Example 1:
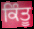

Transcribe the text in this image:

ਕਿੰਤੂ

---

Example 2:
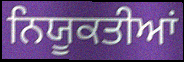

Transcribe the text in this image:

ਨਿਯੂਕਤੀਆਂ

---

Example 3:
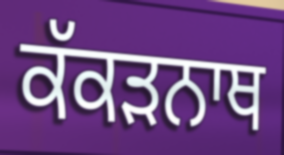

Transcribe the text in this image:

ਕੱਕੜਨਾਥ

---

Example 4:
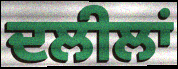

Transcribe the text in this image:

ਦਲੀਲਾਂ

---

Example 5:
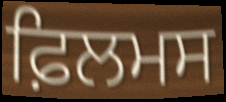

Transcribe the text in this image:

ਫ਼ਿਲਮਸ